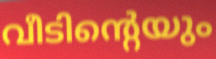
വീടിന്റെയും